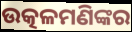
ଉତ୍କଳମଣିଙ୍କର